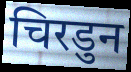
चिरडुन